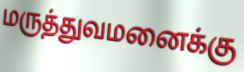
மருத்துவமனைக்கு